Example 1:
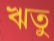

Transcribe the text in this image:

ঋতু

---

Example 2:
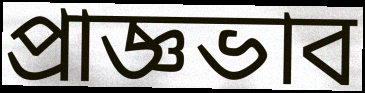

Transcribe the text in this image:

প্রাজ্ঞভাব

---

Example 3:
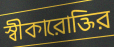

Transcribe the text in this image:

স্বীকারোক্তির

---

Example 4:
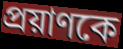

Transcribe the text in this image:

প্রয়াণকে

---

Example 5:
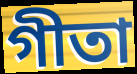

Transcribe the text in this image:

গীতা